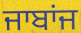
ਜਾਬਾਂਜ